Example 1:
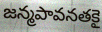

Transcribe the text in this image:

జన్మపావనతకై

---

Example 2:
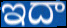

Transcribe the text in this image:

ఇదా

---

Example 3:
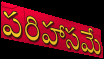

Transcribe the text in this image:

పరిహాసమే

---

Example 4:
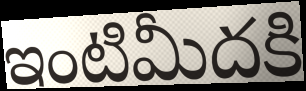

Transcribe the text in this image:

ఇంటిమీదకి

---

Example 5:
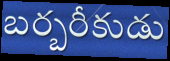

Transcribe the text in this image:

బర్బరీకుడు